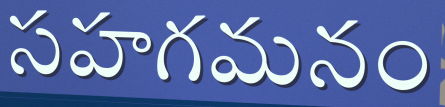
సహగమనం